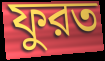
ফুরত